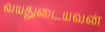
வயதுடையவன்